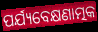
ପର୍ଯ୍ୟବେକ୍ଷଣାତ୍ମକ